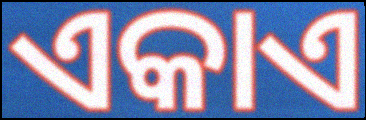
ଏକାଏ